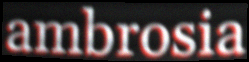
ambrosia